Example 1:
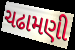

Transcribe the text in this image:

ચઢામણી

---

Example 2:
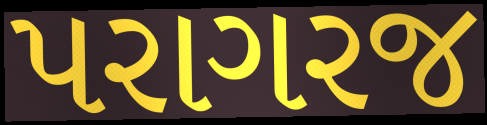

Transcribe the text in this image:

પરાગરજ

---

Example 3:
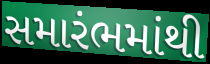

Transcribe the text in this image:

સમારંભમાંથી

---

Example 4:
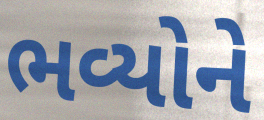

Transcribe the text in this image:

ભવ્યોને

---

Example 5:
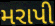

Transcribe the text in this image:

મરાપી